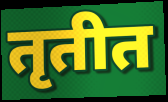
तृतीत